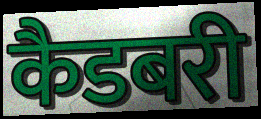
कैडबरी